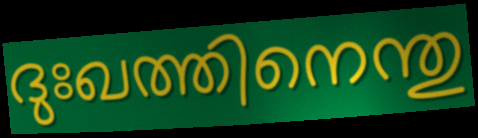
ദുഃഖത്തിനെന്തു